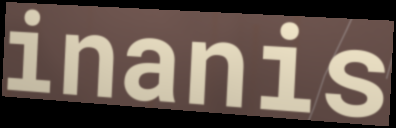
inanis